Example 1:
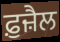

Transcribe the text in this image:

ਫ਼ੁਜ਼ੈਲ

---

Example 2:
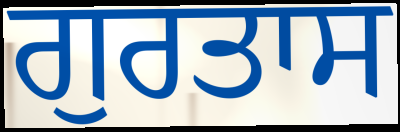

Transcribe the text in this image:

ਗੁਰਤਾਸ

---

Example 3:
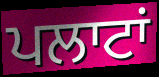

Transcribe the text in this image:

ਪਲਾਟਾਂ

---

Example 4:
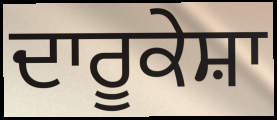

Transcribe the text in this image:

ਦਾਰੂਕੇਸ਼ਾ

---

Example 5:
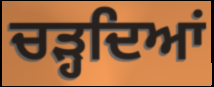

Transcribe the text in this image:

ਚੜ੍ਹਦਿਆਂ